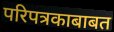
परिपत्रकाबाबत